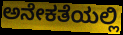
ಅನೇಕತೆಯಲ್ಲಿ